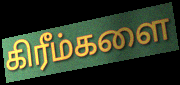
கிரீம்களை